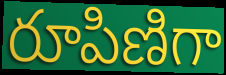
రూపిణిగా